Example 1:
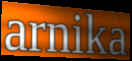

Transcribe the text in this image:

arnika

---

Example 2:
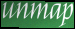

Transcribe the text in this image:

unmap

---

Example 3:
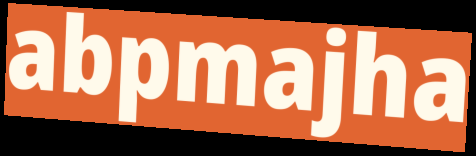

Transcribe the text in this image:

abpmajha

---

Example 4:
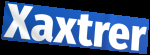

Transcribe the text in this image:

Xaxtrer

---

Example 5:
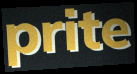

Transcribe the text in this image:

prite